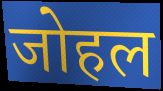
जोहल